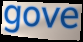
gove